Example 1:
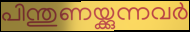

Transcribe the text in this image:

പിന്തുണയ്ക്കുന്നവർ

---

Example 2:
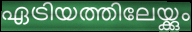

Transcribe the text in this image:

ഏട്രിയത്തിലേയ്ക്കും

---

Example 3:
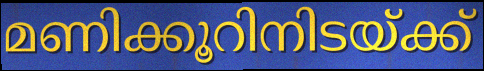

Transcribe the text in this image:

മണിക്കൂറിനിടയ്ക്ക്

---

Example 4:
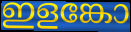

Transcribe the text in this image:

ഇളങ്കോ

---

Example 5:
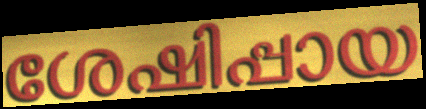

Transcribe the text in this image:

ശേഷിപ്പായ